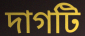
দাগটি